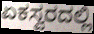
ಏಕಸ್ವರದಲ್ಲಿ